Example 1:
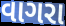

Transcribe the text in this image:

વાગરા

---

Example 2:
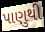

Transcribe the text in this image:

પાણુથી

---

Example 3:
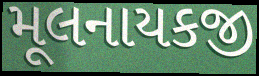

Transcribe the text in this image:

મૂલનાયકજી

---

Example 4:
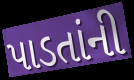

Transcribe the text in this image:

પાડતાંની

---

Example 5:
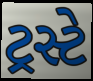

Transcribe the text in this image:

ટ્રસ્ટે